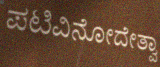
ಪಟಿವಿನೋದೇತ್ವಾ